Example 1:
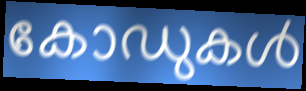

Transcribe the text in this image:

കോഡുകൾ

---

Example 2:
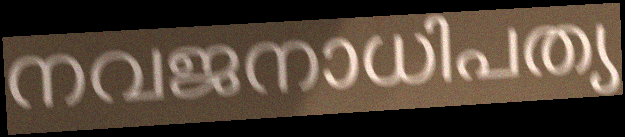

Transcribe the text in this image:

നവജനാധിപത്യ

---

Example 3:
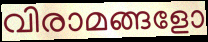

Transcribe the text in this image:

വിരാമങ്ങളോ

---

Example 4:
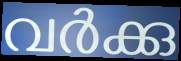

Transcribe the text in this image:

വർക്കു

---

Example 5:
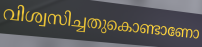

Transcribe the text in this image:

വിശ്വസിച്ചതുകൊണ്ടാണോ